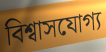
বিশ্বাসযোগ্য